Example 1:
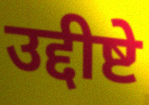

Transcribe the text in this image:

उद्दीष्टे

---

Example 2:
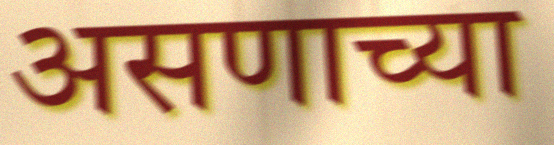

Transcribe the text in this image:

असणाच्या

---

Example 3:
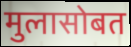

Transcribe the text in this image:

मुलासोबत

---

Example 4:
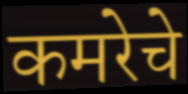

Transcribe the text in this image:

कमरेचे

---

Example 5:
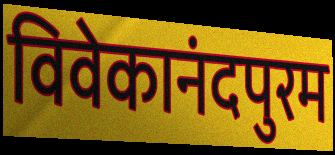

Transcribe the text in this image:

विवेकानंदपुरम